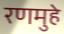
रणमुहे